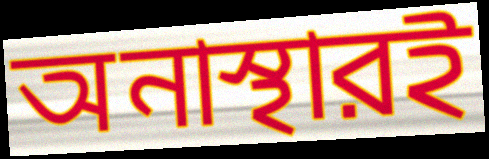
অনাস্থারই